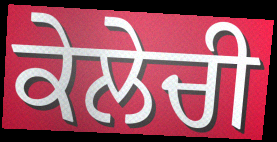
ਕੇਲੇਚੀ